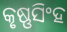
କୃଷ୍ଣସିଂହ